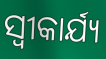
ସ୍ୱୀକାର୍ଯ୍ୟ